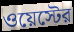
ওয়েস্টের